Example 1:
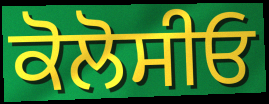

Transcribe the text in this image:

ਕੋਲੋਸੀਓ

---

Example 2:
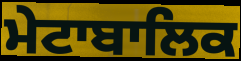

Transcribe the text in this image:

ਮੇਟਾਬਾਲਿਕ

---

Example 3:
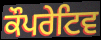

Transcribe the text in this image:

ਕੌਪਰੇਟਿਵ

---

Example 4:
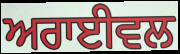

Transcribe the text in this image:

ਅਰਾਈਵਲ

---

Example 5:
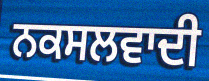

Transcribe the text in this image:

ਨਕਸਲਵਾਦੀ